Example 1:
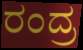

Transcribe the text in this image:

ರಂದ್ರ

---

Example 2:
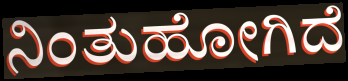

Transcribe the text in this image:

ನಿಂತುಹೋಗಿದೆ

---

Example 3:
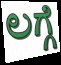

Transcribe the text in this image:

ಲಗ್ಗೆ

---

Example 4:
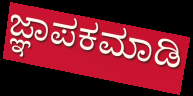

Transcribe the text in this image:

ಜ್ಞಾಪಕಮಾಡಿ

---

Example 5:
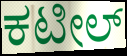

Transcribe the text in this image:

ಕಟೀಲ್